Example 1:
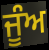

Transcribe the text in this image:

ਜੂੰਅ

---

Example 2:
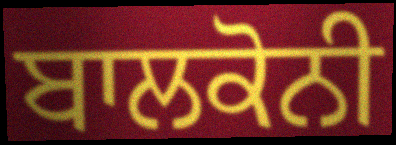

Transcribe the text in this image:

ਬਾਲਕੋਨੀ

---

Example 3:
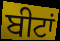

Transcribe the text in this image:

ਬੀਟਾਂ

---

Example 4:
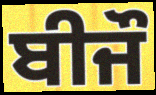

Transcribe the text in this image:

ਬੀਜੌ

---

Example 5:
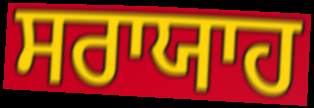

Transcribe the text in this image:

ਸਰਾਯਾਹ